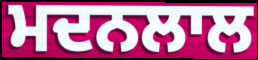
ਮਦਨਲਾਲ